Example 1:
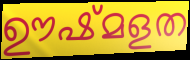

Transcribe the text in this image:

ഊഷ്മളത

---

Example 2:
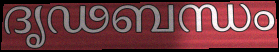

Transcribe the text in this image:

ദൃഢബന്ധം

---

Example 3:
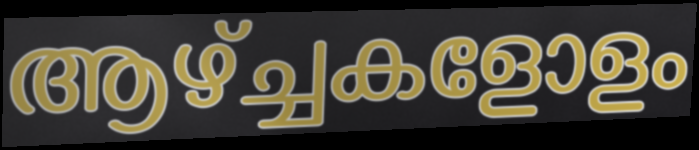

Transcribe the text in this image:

ആഴ്ച്ചകളോളം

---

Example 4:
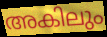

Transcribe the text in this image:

അകിലും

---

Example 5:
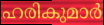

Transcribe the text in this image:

ഹരികുമാർ